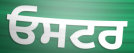
ਓਸਟਰ